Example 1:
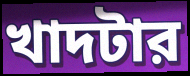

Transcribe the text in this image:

খাদটার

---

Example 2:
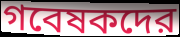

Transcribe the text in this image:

গবেষকদের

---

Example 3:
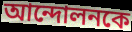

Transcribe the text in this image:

আন্দোলনকে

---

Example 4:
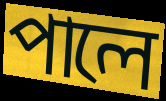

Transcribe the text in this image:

পালে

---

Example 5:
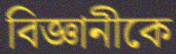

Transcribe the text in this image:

বিজ্ঞানীকে